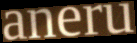
aneru